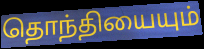
தொந்தியையும்